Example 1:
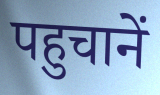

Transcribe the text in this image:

पहुचानें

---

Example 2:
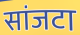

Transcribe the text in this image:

सांजटा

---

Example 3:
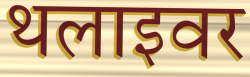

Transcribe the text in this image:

थलाइवर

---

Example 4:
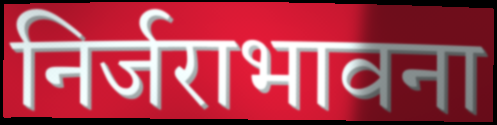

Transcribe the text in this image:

निर्जराभावना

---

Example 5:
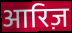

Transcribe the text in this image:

आरिज़